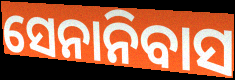
ସେନାନିବାସ